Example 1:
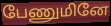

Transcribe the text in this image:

பேணுமினே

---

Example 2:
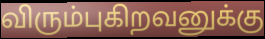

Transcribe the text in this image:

விரும்புகிறவனுக்கு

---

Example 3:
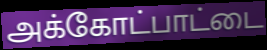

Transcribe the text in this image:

அக்கோட்பாட்டை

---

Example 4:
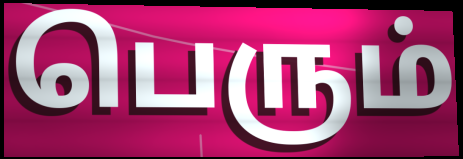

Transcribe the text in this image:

பெரும்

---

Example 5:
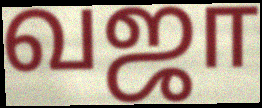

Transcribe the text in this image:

வஜா